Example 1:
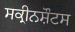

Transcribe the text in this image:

ਸਕ੍ਰੀਨਸ਼ੌਟਸ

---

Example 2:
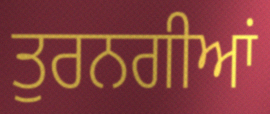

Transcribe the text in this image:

ਤੁਰਨਗੀਆਂ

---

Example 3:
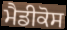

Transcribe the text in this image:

ਮੈਡੀਕੋਸ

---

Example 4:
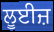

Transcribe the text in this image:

ਲੂਈਜ਼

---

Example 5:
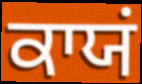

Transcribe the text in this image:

ਕਾਯਂ